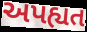
અપહ્યત